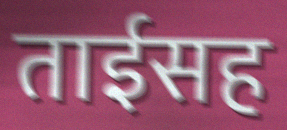
ताईसह